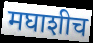
मघाशीच